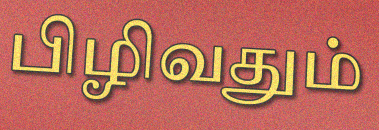
பிழிவதும்